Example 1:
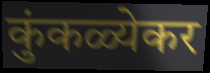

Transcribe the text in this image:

कुंकळ्येकर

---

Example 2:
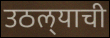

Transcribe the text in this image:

उठल्याची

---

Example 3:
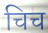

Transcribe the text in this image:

चिच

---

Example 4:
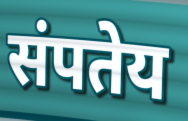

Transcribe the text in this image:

संपतेय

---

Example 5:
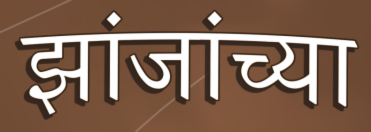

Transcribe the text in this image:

झांजांच्या